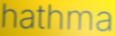
hathma